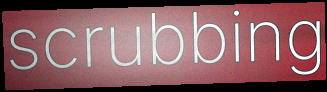
scrubbing